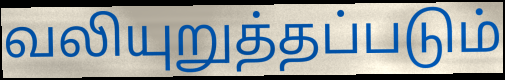
வலியுறுத்தப்படும்